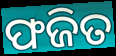
ଫଜିତ